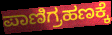
ಪಾಣಿಗ್ರಹಣಕ್ಕೆ